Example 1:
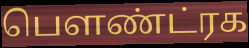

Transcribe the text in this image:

பௌண்ட்ரக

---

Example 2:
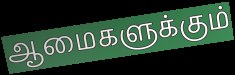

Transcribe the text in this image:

ஆமைகளுக்கும்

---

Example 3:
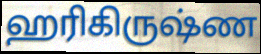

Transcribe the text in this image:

ஹரிகிருஷ்ண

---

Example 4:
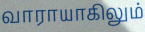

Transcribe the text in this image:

வாராயாகிலும்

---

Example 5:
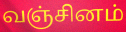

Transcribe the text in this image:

வஞ்சினம்